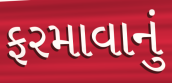
ફરમાવાનું